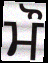
ਮੌ